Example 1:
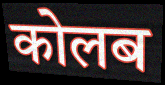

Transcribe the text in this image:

कोलब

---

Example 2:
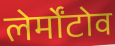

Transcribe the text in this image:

लेर्मोंटोव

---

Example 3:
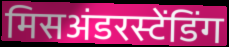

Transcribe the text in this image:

मिसअंडरस्टेंडिंग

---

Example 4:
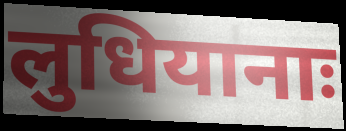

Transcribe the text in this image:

लुधियानाः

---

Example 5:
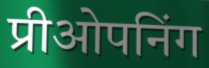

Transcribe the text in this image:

प्रीओपनिंग